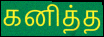
கனித்த